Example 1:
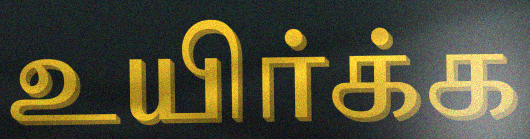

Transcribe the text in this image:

உயிர்க்க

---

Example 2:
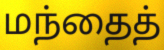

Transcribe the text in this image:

மந்தைத்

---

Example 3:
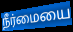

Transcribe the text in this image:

நீர்மையை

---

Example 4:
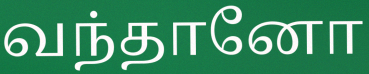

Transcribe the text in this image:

வந்தானோ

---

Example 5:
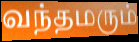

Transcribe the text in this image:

வந்தமரும்